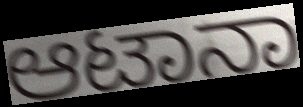
ಆಟಾನಾ